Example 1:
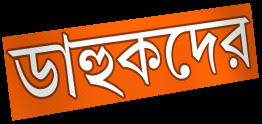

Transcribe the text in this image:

ডাহুকদের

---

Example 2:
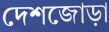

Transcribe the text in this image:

দেশজোড়া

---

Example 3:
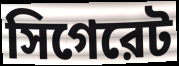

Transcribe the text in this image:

সিগেরেট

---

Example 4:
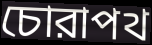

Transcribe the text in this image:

চোরাপথ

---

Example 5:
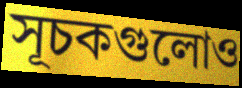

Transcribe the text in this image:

সূচকগুলোও